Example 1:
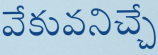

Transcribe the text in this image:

వేకువనిచ్చే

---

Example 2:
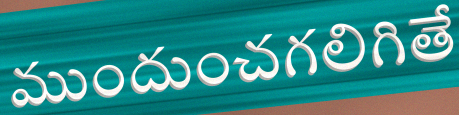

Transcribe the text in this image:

ముందుంచగలిగితే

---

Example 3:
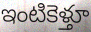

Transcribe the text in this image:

ఇంటికెళ్తూ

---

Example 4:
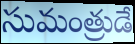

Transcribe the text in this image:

సుమంత్రుడే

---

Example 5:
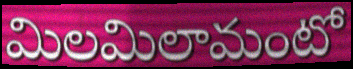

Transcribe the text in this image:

మిలమిలామంటో